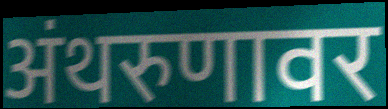
अंथरुणावर